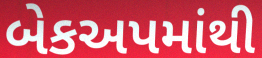
બેકઅપમાંથી